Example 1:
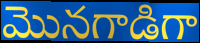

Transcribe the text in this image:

మొనగాడిగా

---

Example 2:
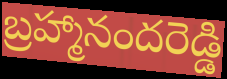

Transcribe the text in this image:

బ్రహ్మానందరెడ్డి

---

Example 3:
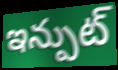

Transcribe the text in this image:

ఇన్పుట్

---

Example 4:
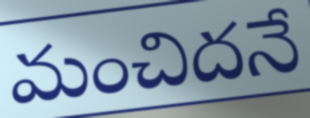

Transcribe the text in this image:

మంచిదనే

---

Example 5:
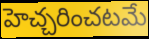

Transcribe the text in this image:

హెచ్చరించటమే